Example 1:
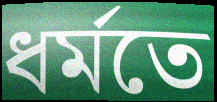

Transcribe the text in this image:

ধৰ্মতে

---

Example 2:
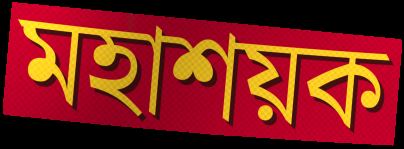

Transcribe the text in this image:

মহাশয়ক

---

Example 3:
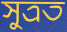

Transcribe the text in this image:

সুত্ৰত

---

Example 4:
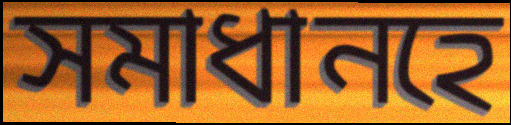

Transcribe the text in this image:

সমাধানহে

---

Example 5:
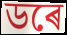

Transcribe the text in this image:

ডৰে